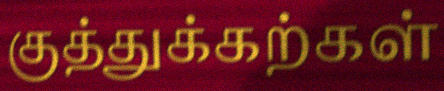
குத்துக்கற்கள்